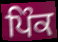
ਪਿੰਕ